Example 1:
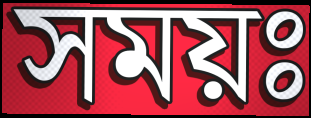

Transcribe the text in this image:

সময়ঃ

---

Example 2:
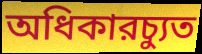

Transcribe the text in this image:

অধিকারচ্যুত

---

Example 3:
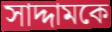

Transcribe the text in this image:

সাদ্দামকে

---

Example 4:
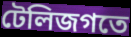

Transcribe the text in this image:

টেলিজগতে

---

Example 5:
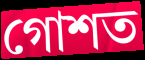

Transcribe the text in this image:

গোশত